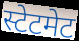
स्टेटमेट